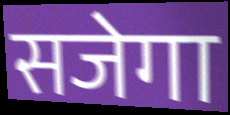
सजेगा